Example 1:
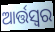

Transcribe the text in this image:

ଆର୍ତ୍ତସ୍ୱର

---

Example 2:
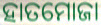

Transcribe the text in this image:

ହାତମୋଜା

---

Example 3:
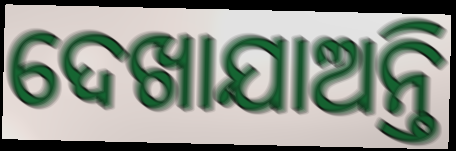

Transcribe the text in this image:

ଦେଖାଯାଅନ୍ତି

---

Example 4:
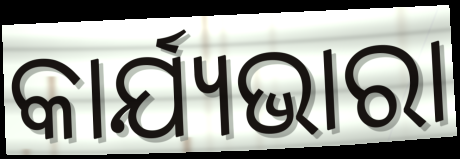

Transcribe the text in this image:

କାର୍ଯ୍ୟଭାରା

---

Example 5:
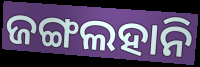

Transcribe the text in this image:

ଜଙ୍ଗଲହାନି